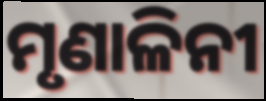
ମୃଣାଳିନୀ